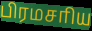
பிரமசரிய